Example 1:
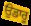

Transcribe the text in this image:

ਉਡਾਰੂ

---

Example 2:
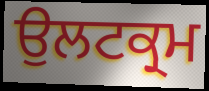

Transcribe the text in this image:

ਉਲਟਕ੍ਰਮ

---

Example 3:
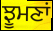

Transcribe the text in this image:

ਝੂਮਣਾਂ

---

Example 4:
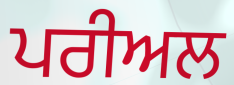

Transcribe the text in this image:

ਪਰੀਅਲ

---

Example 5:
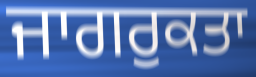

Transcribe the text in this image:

ਜਾਗਰੁਕਤਾ